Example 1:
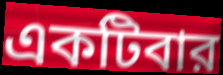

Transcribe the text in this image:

একটিবার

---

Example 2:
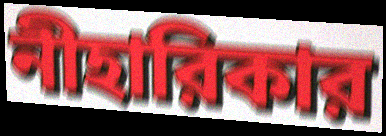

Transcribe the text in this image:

নীহারিকার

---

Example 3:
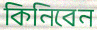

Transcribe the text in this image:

কিনিবেন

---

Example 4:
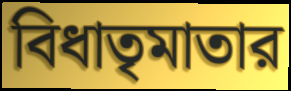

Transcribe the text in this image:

বিধাতৃমাতার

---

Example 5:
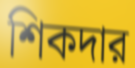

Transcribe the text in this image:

শিকদার